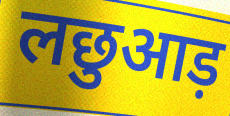
लछुआड़